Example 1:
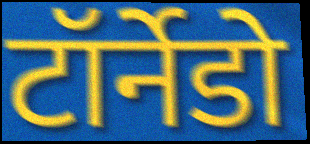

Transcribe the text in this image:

टॉर्नेडो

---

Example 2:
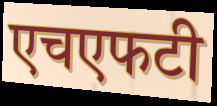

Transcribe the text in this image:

एचएफटी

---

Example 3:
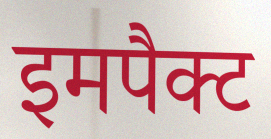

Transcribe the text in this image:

इमपैक्ट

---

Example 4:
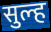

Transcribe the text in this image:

सुल्ह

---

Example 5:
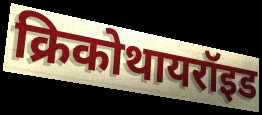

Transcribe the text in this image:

क्रिकोथायरॉइड